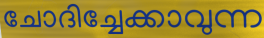
ചോദിച്ചേക്കാവുന്ന